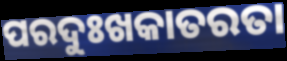
ପରଦୁଃଖକାତରତା